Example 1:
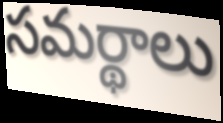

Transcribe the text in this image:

సమర్థాలు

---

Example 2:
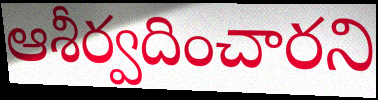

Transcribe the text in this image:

ఆశీర్వదించారని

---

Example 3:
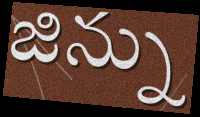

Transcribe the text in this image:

జిన్ను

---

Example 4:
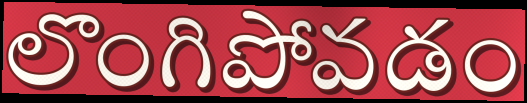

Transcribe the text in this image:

లొంగిపోవడం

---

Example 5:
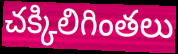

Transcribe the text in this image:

చక్కిలిగింతలు